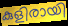
കുളിരായി